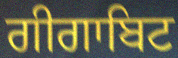
ਗੀਗਾਬਿਟ